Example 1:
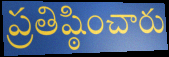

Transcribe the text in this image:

ప్రతిష్ఠించారు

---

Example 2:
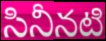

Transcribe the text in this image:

సినీనటి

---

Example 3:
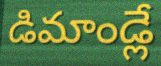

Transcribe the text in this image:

డిమాండ్లే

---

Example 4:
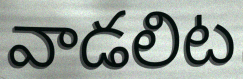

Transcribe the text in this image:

వాడలిట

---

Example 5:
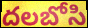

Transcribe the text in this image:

దలబోసి